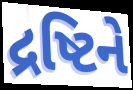
દ્રષ્ટિને